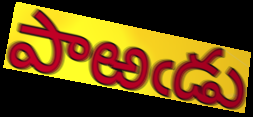
పాఱఁడు